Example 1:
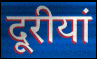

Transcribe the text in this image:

दूरीयां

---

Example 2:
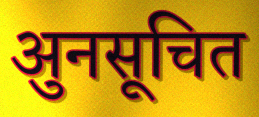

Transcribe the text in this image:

अुनसूचित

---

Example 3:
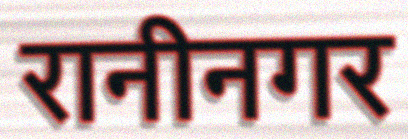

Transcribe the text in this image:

रानीनगर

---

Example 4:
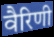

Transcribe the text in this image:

वैरिणी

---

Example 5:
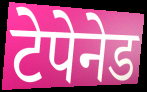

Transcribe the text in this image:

टेपेनेड